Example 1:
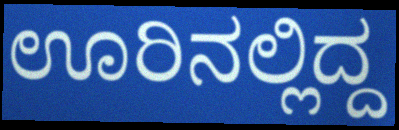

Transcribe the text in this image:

ಊರಿನಲ್ಲಿದ್ದ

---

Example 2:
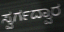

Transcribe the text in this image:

ಸ್ವರ್ಗದ್ವಾರ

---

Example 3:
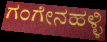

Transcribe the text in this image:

ಗಂಗೇನಹಳ್ಳಿ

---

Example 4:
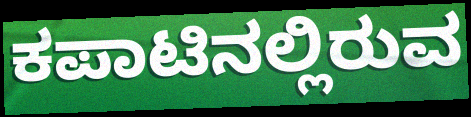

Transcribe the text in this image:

ಕಪಾಟಿನಲ್ಲಿರುವ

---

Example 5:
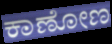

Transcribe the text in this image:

ಕಾಣೋಣ